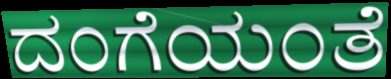
ದಂಗೆಯಂತೆ